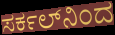
ಸರ್ಕಲ್‌ನಿಂದ